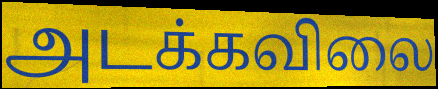
அடக்கவிலை